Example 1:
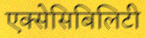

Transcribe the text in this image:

एक्सेसिबिलिटी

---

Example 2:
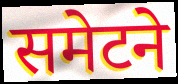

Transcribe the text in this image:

समेटने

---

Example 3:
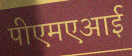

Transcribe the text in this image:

पीएमएआई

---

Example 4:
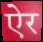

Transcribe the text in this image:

ऐर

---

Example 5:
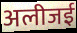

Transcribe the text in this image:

अलीजई